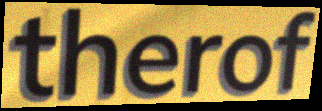
therof